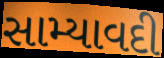
સામ્યાવદી